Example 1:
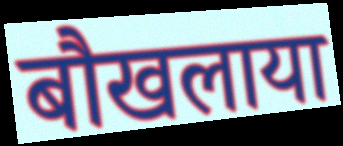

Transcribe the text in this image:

बौखलाया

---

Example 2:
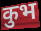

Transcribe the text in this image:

कुभ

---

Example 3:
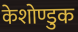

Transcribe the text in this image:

केशोण्डुक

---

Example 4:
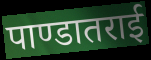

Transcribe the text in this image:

पाण्डातराई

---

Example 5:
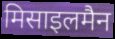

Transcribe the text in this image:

मिसाइलमैन